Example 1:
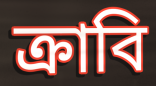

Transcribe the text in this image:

ক্রাবি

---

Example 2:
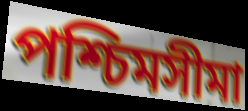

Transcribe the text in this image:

পশ্চিমসীমা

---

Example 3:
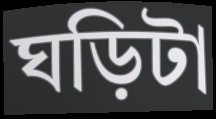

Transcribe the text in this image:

ঘড়িটা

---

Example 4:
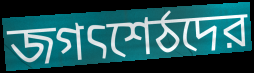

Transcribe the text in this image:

জগৎশেঠদের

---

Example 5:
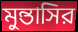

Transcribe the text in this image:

মুন্তাসির